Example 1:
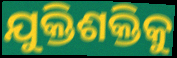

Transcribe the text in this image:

ଯୁକ୍ତିଶକ୍ତିକୁ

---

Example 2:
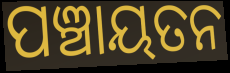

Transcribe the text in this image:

ପଞ୍ଚାୟତନ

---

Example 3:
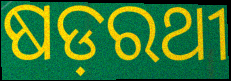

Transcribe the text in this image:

ଷଡ଼ରଥୀ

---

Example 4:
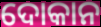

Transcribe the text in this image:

ଦୋକାନ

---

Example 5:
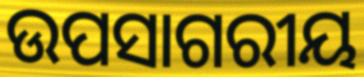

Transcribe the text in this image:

ଉପସାଗରୀୟ